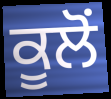
ਕੂਲੋਂ